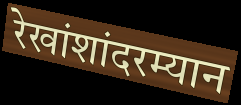
रेखांशांदरम्यान